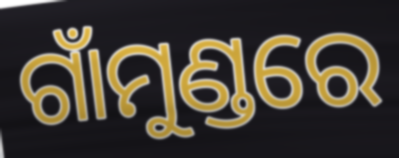
ଗାଁମୁଣ୍ଡରେ